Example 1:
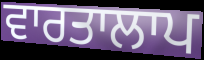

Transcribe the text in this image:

ਵਾਰਤਾਲਾਪ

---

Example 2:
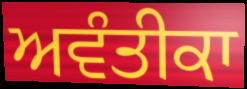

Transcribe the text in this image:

ਅਵੰਤੀਕਾ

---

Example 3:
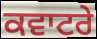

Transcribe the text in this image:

ਕਵਾਟਰੇ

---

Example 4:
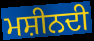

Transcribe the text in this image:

ਮਸ਼ੀਨਦੀ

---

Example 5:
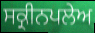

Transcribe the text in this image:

ਸਕ੍ਰੀਨਪਲੇਅ